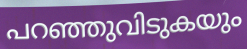
പറഞ്ഞുവിടുകയും